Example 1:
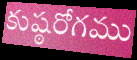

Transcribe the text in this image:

కుష్ఠరోగము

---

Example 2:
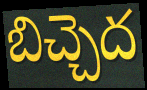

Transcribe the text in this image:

బిచ్చెద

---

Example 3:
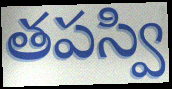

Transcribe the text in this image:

తపస్వి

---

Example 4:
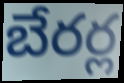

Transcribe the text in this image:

బేరర్ల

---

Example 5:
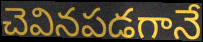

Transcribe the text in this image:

చెవినపడగానే